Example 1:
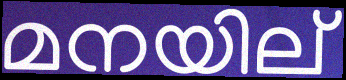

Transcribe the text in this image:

മനയില്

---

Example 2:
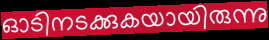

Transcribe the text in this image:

ഓടിനടക്കുകയായിരുന്നു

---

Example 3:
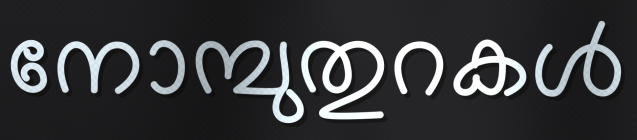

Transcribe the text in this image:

നോമ്പുതുറകൾ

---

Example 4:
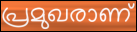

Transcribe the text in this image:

പ്രമുഖരാണ്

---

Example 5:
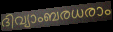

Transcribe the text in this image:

ദിവ്യാംബരധരാം